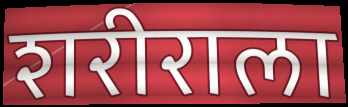
शरीराला